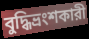
বুদ্ধিভ্রংশকারী